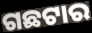
ଗଛଟାର